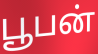
பூபன்